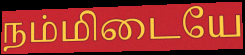
நம்மிடையே